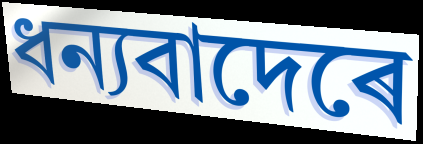
ধন্যবাদেৰে